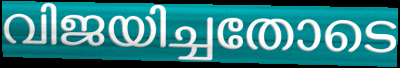
വിജയിച്ചതോടെ